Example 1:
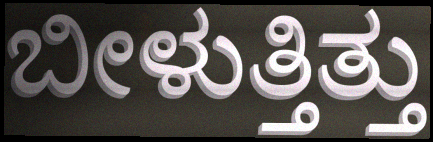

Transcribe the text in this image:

ಬೀಳುತ್ತಿತ್ತು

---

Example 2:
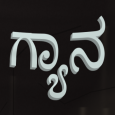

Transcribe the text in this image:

ಗ್ಯಾನ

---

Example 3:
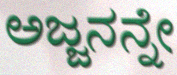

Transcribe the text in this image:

ಅಜ್ಜನನ್ನೇ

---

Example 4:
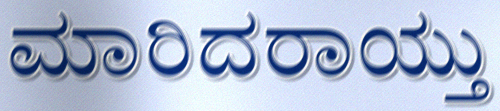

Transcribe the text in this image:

ಮಾರಿದರಾಯ್ತು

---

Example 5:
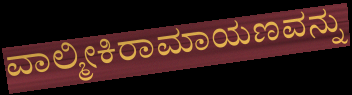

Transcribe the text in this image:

ವಾಲ್ಮೀಕಿರಾಮಾಯಣವನ್ನು